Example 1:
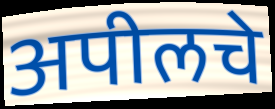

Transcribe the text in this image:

अपीलचे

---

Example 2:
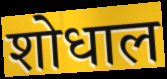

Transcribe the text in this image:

शोधाल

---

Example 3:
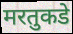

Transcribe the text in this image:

मरतुकडे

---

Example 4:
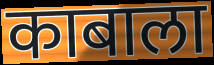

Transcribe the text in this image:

काबाला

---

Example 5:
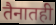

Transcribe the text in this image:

तैनातही